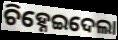
ଚିହ୍ନେଇଦେଲା